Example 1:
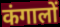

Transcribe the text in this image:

कंगालों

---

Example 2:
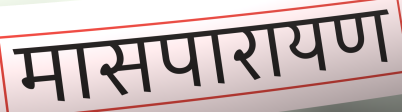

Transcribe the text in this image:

मासपारायण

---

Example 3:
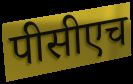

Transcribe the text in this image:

पीसीएच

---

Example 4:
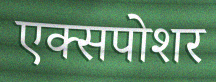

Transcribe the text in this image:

एक्सपोशर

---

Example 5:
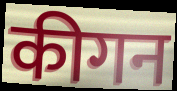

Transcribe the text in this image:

कीगन